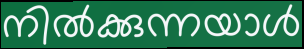
നിൽക്കുന്നയാൾ